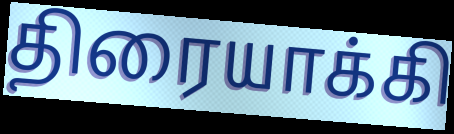
திரையாக்கி